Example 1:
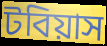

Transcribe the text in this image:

টবিয়াস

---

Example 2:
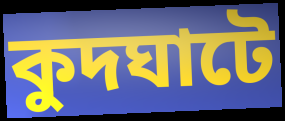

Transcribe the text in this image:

কুদঘাটে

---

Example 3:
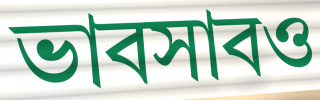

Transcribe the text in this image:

ভাবসাবও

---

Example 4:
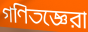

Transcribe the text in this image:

গণিতজ্ঞেরা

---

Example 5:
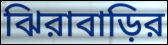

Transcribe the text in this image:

ঝিরাবাড়ির